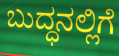
ಬುದ್ಧನಲ್ಲಿಗೆ